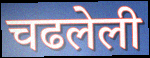
चढलेली